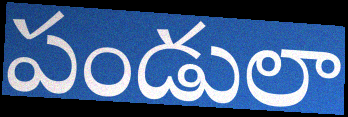
పండులా